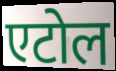
एटोल